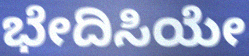
ಭೇದಿಸಿಯೇ